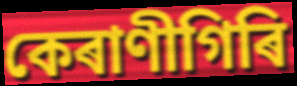
কেৰাণীগিৰি